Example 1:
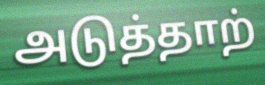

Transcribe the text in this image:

அடுத்தாற்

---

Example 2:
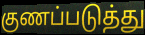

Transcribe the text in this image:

குணப்படுத்து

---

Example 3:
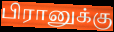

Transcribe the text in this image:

பிரானுக்கு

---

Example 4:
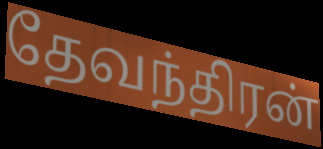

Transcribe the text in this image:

தேவந்திரன்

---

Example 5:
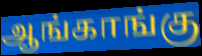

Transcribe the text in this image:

ஆங்காங்கு